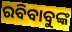
ରବିବାବୁଙ୍କ